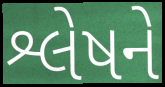
શ્લેષને